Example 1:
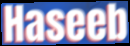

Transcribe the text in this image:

Haseeb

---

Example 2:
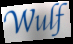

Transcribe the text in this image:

Wulf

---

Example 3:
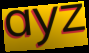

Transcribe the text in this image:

ayz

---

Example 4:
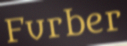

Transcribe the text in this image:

Furber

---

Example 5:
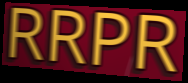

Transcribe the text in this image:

RRPR